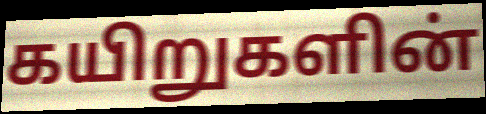
கயிறுகளின்